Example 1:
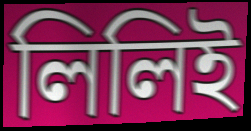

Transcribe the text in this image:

লিলিই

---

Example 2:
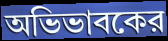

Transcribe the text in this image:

অভিভাবকের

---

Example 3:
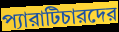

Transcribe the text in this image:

প্যারাটিচারদের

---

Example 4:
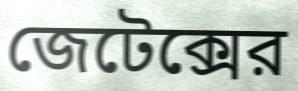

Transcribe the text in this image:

জেটেক্সের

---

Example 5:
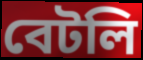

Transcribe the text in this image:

বেটলি